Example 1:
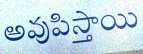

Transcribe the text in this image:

అవుపిస్తాయి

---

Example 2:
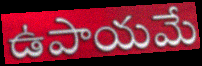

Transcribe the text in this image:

ఉపాయమే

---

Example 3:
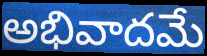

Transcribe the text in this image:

అభివాదమే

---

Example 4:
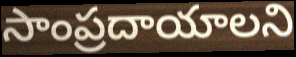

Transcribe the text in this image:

సాంప్రదాయాలని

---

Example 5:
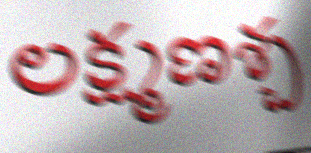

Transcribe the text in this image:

లక్ష్మణశ్చ